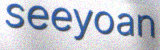
seeyoan